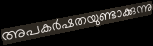
അപകർഷതയുണ്ടാക്കുന്നു